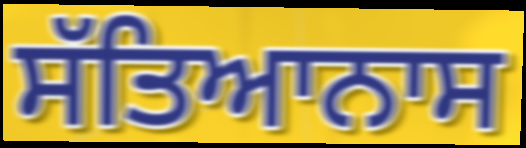
ਸੱਤਿਆਨਾਸ